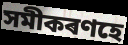
সমীকৰণহে